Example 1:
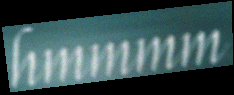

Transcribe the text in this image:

hmmmm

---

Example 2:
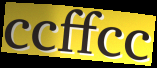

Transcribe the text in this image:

ccffcc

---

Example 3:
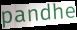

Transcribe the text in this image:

pandhe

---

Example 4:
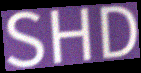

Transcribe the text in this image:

SHD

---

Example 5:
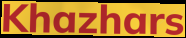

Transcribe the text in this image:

Khazhars